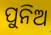
ପୁନିଅ